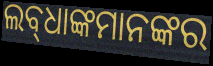
ଲବ୍‌ଧାଙ୍କମାନଙ୍କର